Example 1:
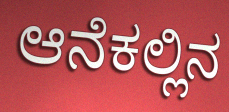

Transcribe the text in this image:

ಆನೆಕಲ್ಲಿನ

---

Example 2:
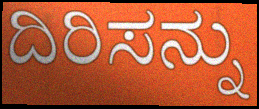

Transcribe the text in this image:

ದಿರಿಸನ್ನು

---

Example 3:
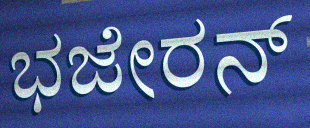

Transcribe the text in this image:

ಭಜೇರನ್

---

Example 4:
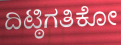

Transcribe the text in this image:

ದಿಟ್ಠಿಗತಿಕೋ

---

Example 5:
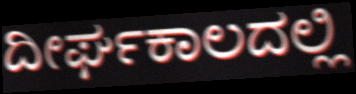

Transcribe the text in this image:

ದೀರ್ಘಕಾಲದಲ್ಲಿ